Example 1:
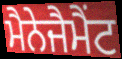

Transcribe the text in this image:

ਮੈਨੇਜੈਮੈਂਟ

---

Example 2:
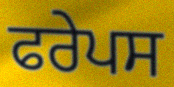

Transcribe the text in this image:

ਫਰੇਪਸ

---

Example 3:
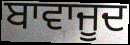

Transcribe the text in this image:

ਬਾਵਾਜੂਦ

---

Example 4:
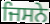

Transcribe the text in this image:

ਜਿਸਨੇ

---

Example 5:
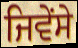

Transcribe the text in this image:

ਜਿਵੇਂਸੇ